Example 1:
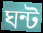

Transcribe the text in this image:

ঘন্ট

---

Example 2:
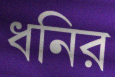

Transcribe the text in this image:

ধনির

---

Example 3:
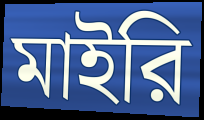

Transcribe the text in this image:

মাইরি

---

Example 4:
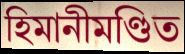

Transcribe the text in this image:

হিমানীমণ্ডিত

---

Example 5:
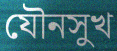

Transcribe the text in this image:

যৌনসুখ